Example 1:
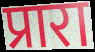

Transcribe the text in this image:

प्रारा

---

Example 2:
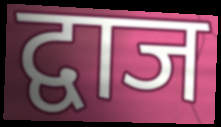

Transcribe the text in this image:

द्वाज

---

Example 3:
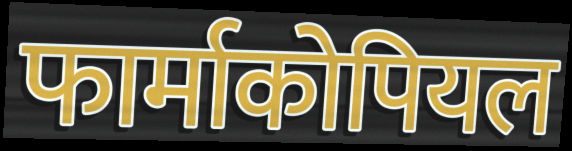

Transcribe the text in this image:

फार्माकोपियल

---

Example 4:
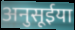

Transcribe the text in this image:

अनुसूईया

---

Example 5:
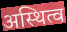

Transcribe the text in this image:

अस्थित्व